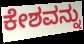
ಕೇಶವನ್ನು